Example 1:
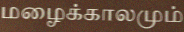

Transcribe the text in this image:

மழைக்காலமும்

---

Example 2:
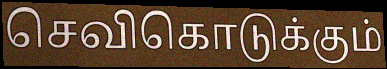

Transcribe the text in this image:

செவிகொடுக்கும்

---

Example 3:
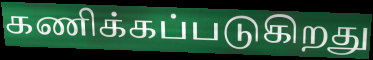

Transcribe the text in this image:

கணிக்கப்படுகிறது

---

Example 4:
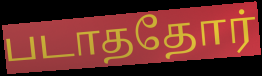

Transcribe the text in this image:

படாததோர்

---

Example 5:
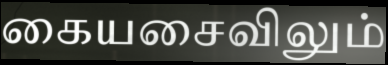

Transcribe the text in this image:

கையசைவிலும்